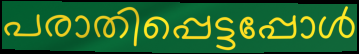
പരാതിപ്പെട്ടപ്പോൾ